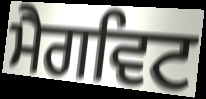
ਮੈਗਵਿਟ